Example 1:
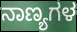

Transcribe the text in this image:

ನಾಣ್ಯಗಳ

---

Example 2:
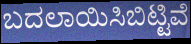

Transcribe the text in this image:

ಬದಲಾಯಿಸಿಬಿಟ್ಟಿವೆ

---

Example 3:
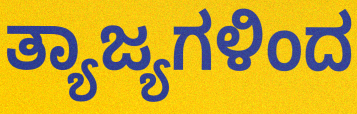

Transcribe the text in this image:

ತ್ಯಾಜ್ಯಗಳಿಂದ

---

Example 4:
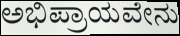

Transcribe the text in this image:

ಅಭಿಪ್ರಾಯವೇನು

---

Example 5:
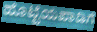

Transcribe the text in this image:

ಹೊಟ್ಟೆಯಪಾಡಿಗೆ